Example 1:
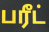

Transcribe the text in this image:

பரீட்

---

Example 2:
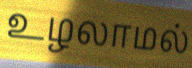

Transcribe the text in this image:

உழலாமல்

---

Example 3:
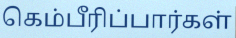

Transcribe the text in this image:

கெம்பீரிப்பார்கள்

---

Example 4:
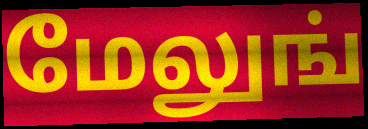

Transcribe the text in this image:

மேலுங்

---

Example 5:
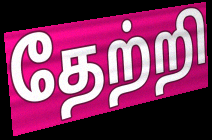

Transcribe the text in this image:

தேற்றி